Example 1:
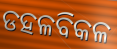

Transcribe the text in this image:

ଡହଳବିକଳ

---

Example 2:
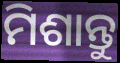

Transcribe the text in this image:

ମିଶାନ୍ତୁ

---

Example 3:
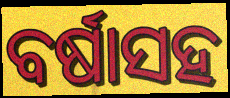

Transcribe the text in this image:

ବର୍ଷାସହ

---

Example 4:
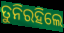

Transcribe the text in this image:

ତୁନିରହିଲେ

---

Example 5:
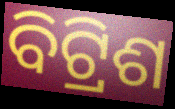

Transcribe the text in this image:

ବିଟ୍ରିଶ